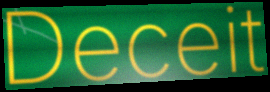
Deceit